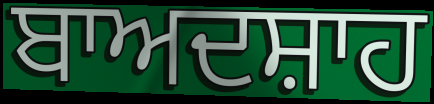
ਬਾਅਦਸ਼ਾਹ